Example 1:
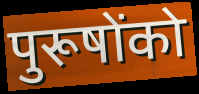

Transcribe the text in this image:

पुरूषोंको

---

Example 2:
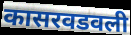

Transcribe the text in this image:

कासरवडवली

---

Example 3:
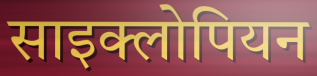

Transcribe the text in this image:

साइक्लोपियन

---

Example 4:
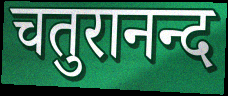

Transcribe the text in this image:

चतुरानन्द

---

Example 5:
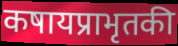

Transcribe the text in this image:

कषायप्राभृतकी